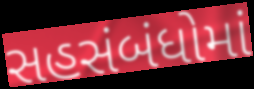
સહસંબંધોમાં